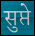
सुप्ते